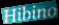
Hibino